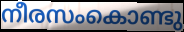
നീരസംകൊണ്ടു